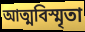
আত্মবিস্মৃতা